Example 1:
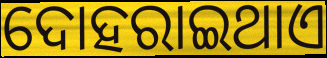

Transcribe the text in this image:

ଦୋହରାଇଥାଏ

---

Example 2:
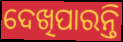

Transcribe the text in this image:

ଦେଖିପାରନ୍ତି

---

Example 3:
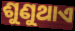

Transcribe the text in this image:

ଶୁଣୁଥାଏ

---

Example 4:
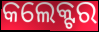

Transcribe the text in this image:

କଲେକ୍ଟର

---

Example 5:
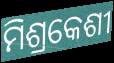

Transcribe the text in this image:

ମିଶ୍ରକେଶୀ